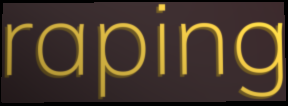
raping